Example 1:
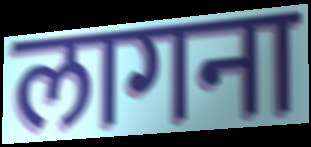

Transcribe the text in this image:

लागना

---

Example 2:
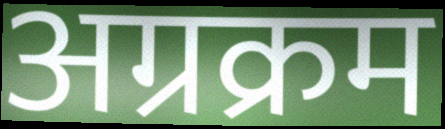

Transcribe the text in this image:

अग्रक्रम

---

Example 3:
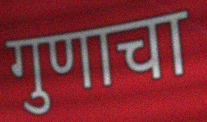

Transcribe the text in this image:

गुणाचा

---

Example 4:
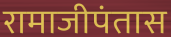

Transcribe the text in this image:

रामाजीपंतास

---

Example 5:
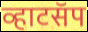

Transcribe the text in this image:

व्हाटसॅप